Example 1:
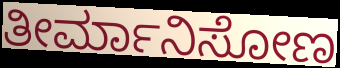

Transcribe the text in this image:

ತೀರ್ಮಾನಿಸೋಣ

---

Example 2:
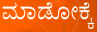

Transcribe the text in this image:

ಮಾಡೋಕ್ಕೆ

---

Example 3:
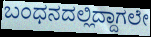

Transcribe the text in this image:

ಬಂಧನದಲ್ಲಿದ್ದಾಗಲೇ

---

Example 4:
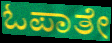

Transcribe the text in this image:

ಓಪಾತೇ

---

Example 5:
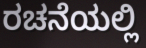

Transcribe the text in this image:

ರಚನೆಯಲ್ಲಿ